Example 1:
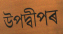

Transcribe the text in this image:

উপদ্বীপৰ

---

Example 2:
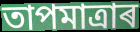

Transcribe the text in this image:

তাপমাত্ৰাৰ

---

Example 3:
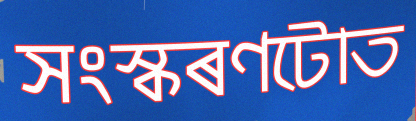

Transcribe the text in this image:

সংস্কৰণটোত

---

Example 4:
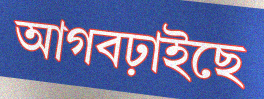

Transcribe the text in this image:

আগবঢ়াইছে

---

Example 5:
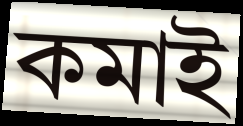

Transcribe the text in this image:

কমাই